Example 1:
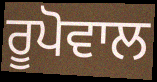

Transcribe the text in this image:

ਰੂਪੋਵਾਲ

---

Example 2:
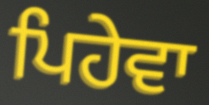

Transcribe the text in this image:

ਪਿਹੇਵਾ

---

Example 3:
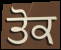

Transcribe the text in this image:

ਤੋਕ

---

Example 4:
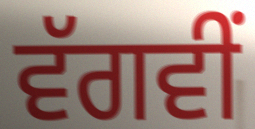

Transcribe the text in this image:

ਵੱਗਵੀਂ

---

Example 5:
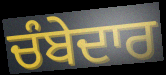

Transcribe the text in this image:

ਚੰਬੇਦਾਰ